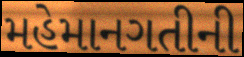
મહેમાનગતીની